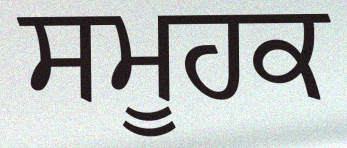
ਸਮੂਹਕ